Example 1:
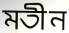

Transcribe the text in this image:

মতীন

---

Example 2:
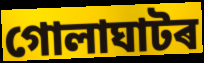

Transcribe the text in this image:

গোলাঘাটৰ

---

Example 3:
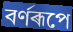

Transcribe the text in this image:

বৰ্ণৰূপে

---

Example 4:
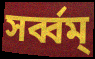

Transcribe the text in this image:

সৰ্ব্বম্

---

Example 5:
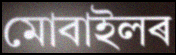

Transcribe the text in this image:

মোবাইলৰ